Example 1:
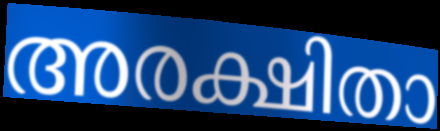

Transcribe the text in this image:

അരക്ഷിതാ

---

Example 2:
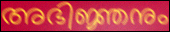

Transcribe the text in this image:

അഭിജ്ഞനും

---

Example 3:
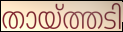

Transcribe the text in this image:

തായ്ത്തടി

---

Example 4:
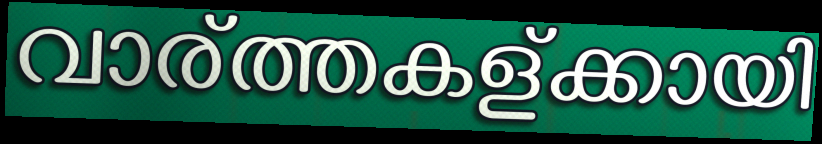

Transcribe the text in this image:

വാര്ത്തകള്ക്കായി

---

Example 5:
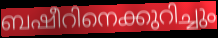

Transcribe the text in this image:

ബഷീറിനെക്കുറിച്ചും